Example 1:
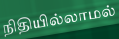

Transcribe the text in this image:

நிதியில்லாமல்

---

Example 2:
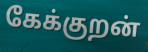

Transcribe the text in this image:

கேக்குறன்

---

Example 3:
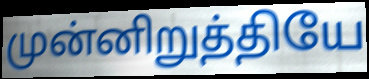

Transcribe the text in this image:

முன்னிறுத்தியே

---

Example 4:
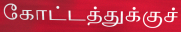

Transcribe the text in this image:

கோட்டத்துக்குச்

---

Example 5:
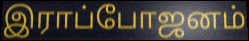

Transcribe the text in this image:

இராப்போஜனம்